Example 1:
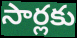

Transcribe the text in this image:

సార్లకు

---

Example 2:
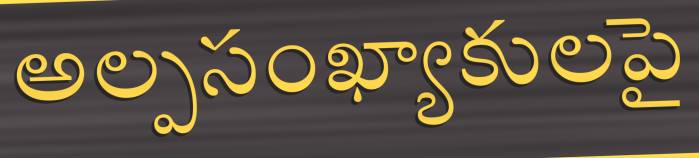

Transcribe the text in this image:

అల్పసంఖ్యాకులపై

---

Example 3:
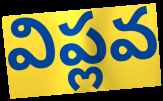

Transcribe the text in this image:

విప్లవ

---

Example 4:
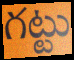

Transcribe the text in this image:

గట్టు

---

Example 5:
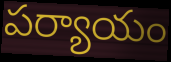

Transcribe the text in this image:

పర్యాయం